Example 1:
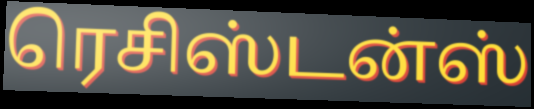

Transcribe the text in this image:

ரெசிஸ்டன்ஸ்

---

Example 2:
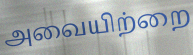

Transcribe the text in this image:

அவையிற்றை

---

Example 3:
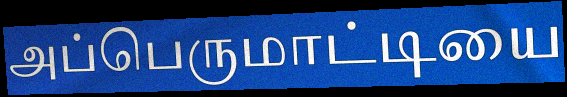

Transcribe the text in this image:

அப்பெருமாட்டியை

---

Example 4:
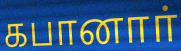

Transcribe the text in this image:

கபானார்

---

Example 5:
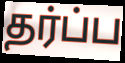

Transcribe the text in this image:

தர்ப்ப